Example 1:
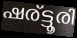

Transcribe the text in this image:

ഷര്ട്ടൂരി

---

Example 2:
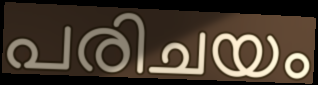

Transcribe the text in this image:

പരിചയം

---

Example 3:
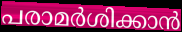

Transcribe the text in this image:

പരാമർശിക്കാൻ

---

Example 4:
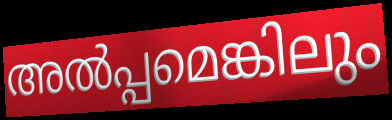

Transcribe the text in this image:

അൽപ്പമെങ്കിലും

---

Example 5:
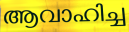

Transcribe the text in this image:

ആവാഹിച്ച